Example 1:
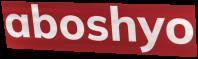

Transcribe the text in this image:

aboshyo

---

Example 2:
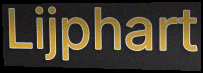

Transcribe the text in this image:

Lijphart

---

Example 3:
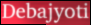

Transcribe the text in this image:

Debajyoti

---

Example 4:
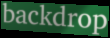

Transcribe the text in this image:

backdrop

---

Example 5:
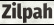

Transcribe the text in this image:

Zilpah